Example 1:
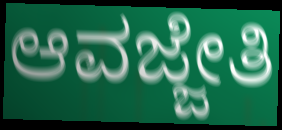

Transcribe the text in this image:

ಆವಜ್ಜೇತಿ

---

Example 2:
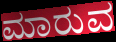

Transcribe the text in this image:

ಮಾರುವ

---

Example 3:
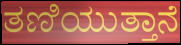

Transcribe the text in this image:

ತಣಿಯುತ್ತಾನೆ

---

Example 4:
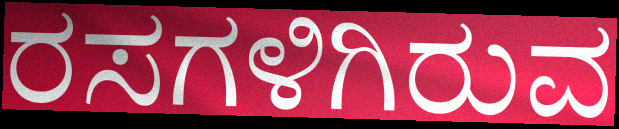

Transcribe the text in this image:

ರಸಗಳಿಗಿರುವ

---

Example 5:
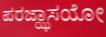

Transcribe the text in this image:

ಪರಜ್ಝಾಸಯೋ